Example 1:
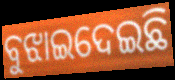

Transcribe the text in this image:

ବୁଝାଇଦେଇଛି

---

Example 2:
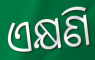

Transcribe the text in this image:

ଏକ୍ଷଣି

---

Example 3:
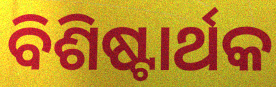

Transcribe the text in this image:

ବିଶିଷ୍ଟାର୍ଥକ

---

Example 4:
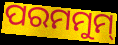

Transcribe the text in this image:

ପରମମୁମ୍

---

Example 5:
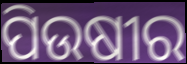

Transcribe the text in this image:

ପିଉଷୀର